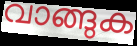
വാങ്ങുക